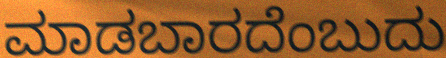
ಮಾಡಬಾರದೆಂಬುದು